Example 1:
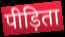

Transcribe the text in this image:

पीड़िता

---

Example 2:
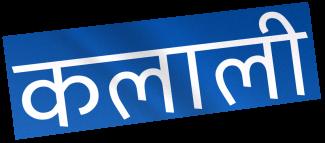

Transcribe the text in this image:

कलाली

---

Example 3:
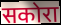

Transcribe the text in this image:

सकोरा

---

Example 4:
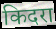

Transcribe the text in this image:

किदरा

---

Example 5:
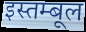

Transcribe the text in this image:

इस्तम्बूल